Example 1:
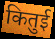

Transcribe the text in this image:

कितुई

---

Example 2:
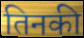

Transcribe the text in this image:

तिनकी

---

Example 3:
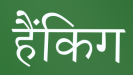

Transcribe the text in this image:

हैंकिग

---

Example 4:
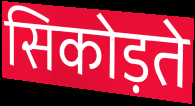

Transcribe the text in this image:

सिकोड़ते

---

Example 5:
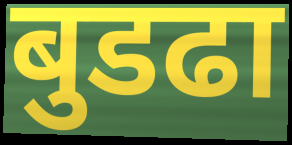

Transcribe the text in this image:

बुडढा